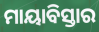
ମାୟାବିସ୍ତାର